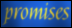
promises